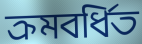
ক্ৰমবৰ্ধিত